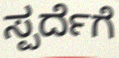
ಸ್ಪರ್ದೆಗೆ